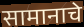
सामानाचे